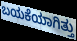
ಬಯಕೆಯಾಗಿತ್ತು